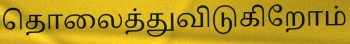
தொலைத்துவிடுகிறோம்